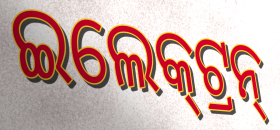
ଇଲେକ୍‍ଟ୍ରନ୍